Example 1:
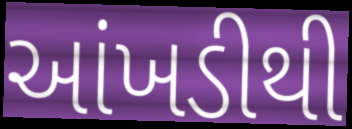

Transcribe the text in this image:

આંખડીથી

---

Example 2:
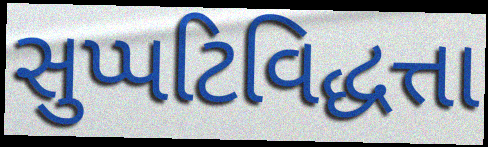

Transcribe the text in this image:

સુપ્પટિવિદ્ધત્તા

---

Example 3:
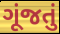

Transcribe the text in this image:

ગૂંજતું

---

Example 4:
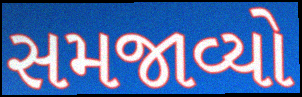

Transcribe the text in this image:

સમજાવ્યો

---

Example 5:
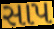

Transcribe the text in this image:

સાપ